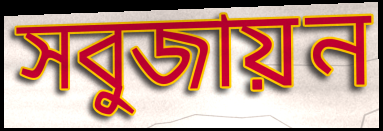
সবুজায়ন